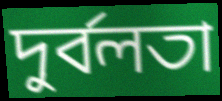
দুর্বলতা